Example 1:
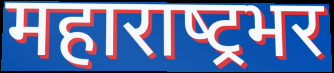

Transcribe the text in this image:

महाराष्ट्रभर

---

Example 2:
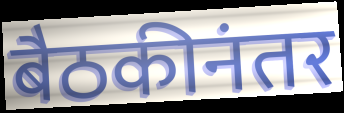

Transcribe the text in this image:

बैठकीनंतर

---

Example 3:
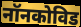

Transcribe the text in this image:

नॉनकोविड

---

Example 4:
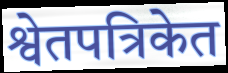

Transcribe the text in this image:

श्वेतपत्रिकेत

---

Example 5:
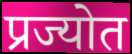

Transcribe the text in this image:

प्रज्योत